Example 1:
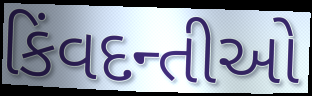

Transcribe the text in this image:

કિંવદન્તીઓ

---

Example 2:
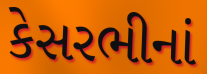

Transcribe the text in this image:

કેસરભીનાં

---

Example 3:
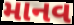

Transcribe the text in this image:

માનવ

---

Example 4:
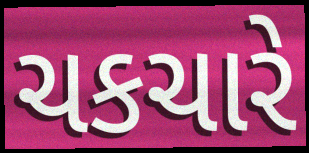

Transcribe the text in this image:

ચકચારે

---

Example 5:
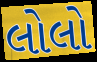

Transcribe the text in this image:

લોલો